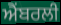
ਐਂਬਰਲੀ